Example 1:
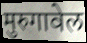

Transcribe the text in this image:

मुरुगावेल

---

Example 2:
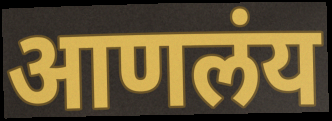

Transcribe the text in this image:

आणलंय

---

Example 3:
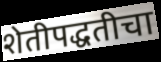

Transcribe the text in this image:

शेतीपद्धतीचा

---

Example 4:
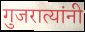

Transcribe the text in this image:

गुजरात्यांनी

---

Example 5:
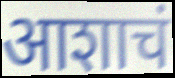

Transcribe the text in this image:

आशाचं